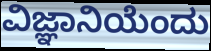
ವಿಜ್ಞಾನಿಯೆಂದು